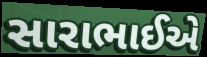
સારાભાઈએ